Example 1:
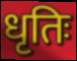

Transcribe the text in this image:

धृतिः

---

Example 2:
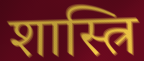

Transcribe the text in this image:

शास्त्रि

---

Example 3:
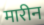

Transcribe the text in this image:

मारीन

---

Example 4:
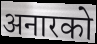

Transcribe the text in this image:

अनारको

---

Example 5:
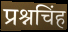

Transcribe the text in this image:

प्रश्नचिंह